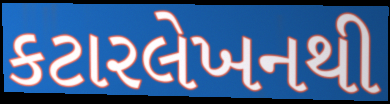
કટારલેખનથી